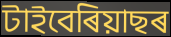
টাইবেৰিয়াছৰ